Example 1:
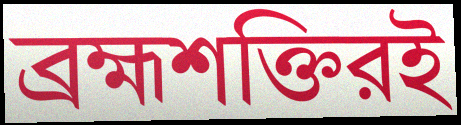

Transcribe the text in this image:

ব্রহ্মশক্তিরই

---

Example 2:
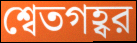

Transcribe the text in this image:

শ্বেতগহ্বর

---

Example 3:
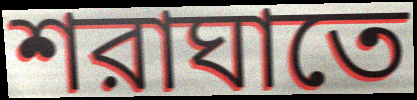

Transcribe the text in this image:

শরাঘাতে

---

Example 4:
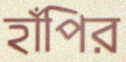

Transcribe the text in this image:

হাঁপির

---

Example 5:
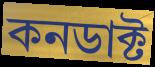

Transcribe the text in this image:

কনডাক্ট